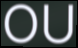
OU